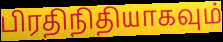
பிரதிநிதியாகவும்